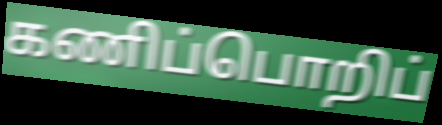
கணிப்பொறிப்